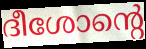
ദീശോന്റെ